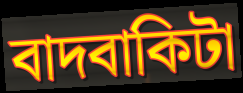
বাদবাকিটা